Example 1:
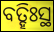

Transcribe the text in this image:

ବତ୍ହିଃସ୍ଥ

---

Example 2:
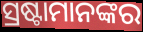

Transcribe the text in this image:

ସ୍ରଷ୍ଟାମାନଙ୍କର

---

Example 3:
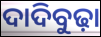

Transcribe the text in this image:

ଦାଦିବୁଢ଼ା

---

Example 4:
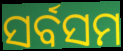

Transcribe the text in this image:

ସର୍ବସମ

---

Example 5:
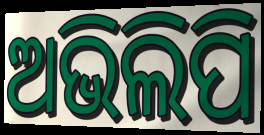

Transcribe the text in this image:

ଅଭିଲିପି